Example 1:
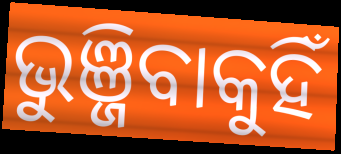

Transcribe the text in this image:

ଭୁଞ୍ଜିବାକୁହିଁ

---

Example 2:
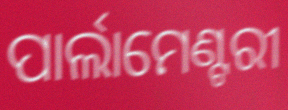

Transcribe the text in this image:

ପାର୍ଲାମେଣ୍ଟରୀ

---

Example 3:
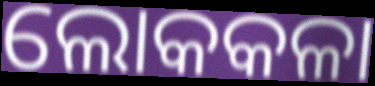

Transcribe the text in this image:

ଲୋକକଳା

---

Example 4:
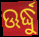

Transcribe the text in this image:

ଊର୍ଦ୍ଧୁ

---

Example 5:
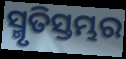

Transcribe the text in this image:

ସ୍ମୃତିସ୍ତମ୍ଭର